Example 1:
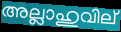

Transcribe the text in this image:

അല്ലാഹുവില്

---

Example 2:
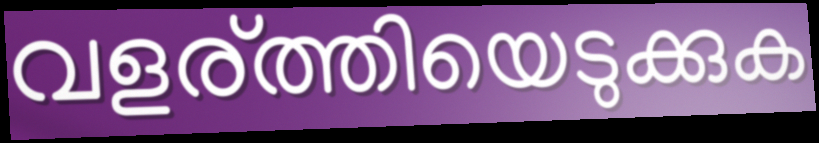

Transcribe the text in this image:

വളര്ത്തിയെടുക്കുക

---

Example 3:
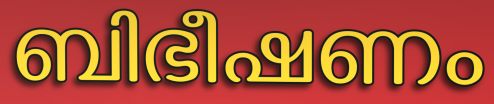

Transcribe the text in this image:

ബിഭീഷണം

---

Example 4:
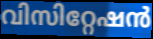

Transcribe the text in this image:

വിസിറ്റേഷൻ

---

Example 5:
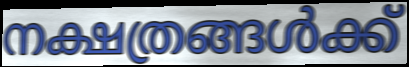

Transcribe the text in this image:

നക്ഷത്രങ്ങൾക്ക്